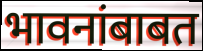
भावनांबाबत